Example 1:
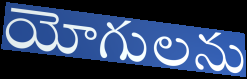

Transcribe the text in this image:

యోగులను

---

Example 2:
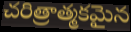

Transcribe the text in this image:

చరిత్రాత్మకమైన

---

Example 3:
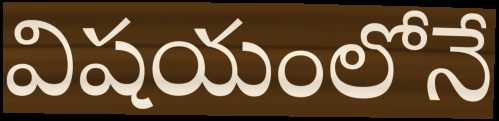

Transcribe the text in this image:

విషయంలోనే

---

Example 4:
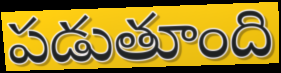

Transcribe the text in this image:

పడుతూంది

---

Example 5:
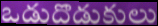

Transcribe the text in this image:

ఒడుదొడుకులు